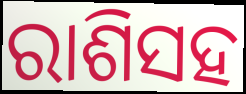
ରାଶିସହ